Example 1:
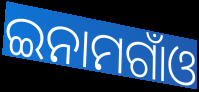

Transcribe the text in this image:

ଇନାମଗାଁଓ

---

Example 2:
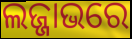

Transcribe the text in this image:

ଲଜ୍ଜାଭରେ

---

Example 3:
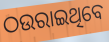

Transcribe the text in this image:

ଠଉରାଇଥିବେ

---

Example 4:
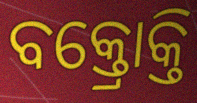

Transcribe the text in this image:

ବକ୍ତ୍ରୋକ୍ତି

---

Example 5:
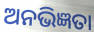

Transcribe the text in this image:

ଅନଭିଜ୍ଞତା